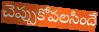
చెప్పుకోవలసిందే